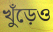
খুঁড়েও